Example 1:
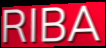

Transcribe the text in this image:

RIBA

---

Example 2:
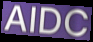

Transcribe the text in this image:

AIDC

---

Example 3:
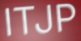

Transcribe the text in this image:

ITJP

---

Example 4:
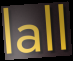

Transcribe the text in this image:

lall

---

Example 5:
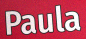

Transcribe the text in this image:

Paula